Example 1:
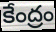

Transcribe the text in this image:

కేంద్రం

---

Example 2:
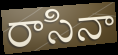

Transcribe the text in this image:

రాసినా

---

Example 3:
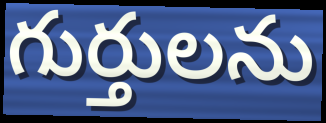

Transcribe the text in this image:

గుర్తులను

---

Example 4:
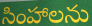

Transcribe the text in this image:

సింహాలను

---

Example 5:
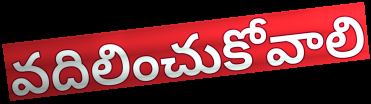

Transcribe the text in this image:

వదిలించుకోవాలి